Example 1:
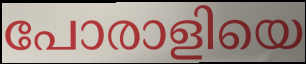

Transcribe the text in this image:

പോരാളിയെ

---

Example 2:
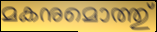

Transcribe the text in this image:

മകനുമൊത്തു്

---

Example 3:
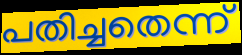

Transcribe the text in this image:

പതിച്ചതെന്ന്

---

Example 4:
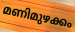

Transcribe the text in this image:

മണിമുഴക്കം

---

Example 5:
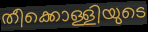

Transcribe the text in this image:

തീക്കൊള്ളിയുടെ